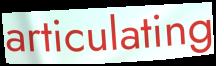
articulating